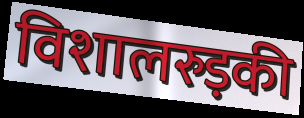
विशालरुड़की